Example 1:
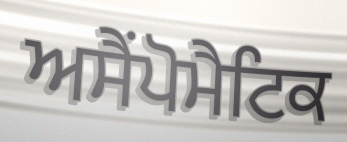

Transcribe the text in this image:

ਅਸੈਂਪੋਮੈਟਿਕ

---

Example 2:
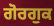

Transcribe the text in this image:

ਗੋਰਗੁਕ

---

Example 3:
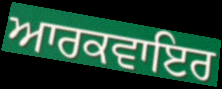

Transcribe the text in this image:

ਆਰਕਵਾਇਰ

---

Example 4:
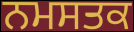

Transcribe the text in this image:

ਨਮਸਤਕ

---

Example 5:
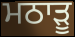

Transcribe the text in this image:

ਮਠਾੜੂ